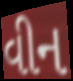
વીન